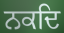
ਨਕਦਿ